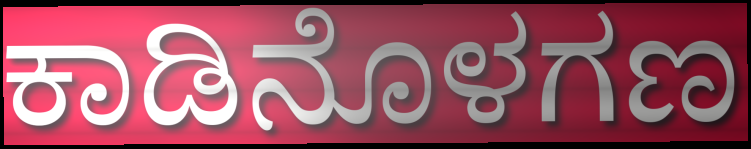
ಕಾಡಿನೊಳಗಣ